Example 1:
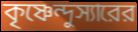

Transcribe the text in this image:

কৃষ্ণেন্দুস্যারের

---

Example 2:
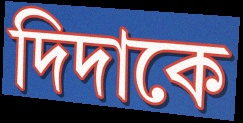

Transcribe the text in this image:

দিদাকে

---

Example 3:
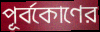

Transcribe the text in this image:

পূর্বকোণের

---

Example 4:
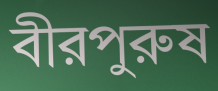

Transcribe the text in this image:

বীরপুরুষ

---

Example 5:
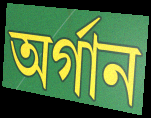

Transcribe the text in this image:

অর্গান